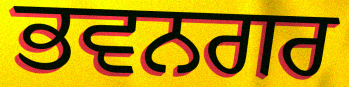
ਭਵਨਗਰ